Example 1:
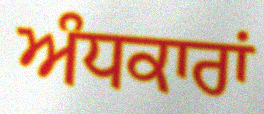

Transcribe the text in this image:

ਅੰਧਕਾਰਾਂ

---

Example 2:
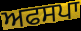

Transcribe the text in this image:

ਅਫਸਪਾ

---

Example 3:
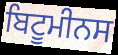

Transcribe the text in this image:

ਬਿਟੂਮੀਨਸ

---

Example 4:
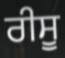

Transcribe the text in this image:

ਰੀਸੂ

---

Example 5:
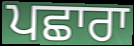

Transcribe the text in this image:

ਪਛਾਰਾ